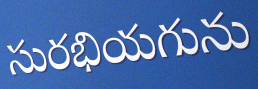
సురభియగును